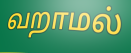
வறாமல்